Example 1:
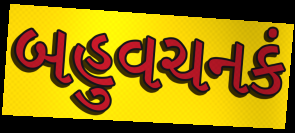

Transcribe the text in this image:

બહુવચનકં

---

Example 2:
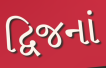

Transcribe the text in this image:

દ્વિજનાં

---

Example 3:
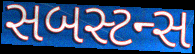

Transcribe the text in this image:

સબસ્ટન્સ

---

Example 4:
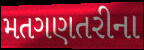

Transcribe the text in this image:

મતગણતરીના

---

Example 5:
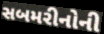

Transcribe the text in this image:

સબમરીનોની